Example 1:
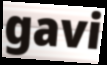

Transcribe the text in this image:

gavi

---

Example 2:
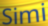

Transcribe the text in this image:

Simi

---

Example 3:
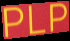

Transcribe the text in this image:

PLP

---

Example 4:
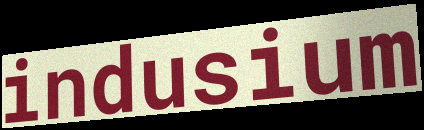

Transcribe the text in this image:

indusium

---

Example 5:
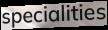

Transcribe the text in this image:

specialities